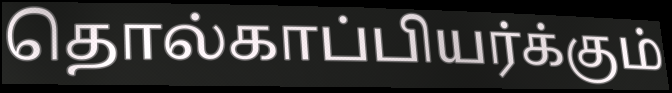
தொல்காப்பியர்க்கும்